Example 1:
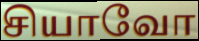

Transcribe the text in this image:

சியாவோ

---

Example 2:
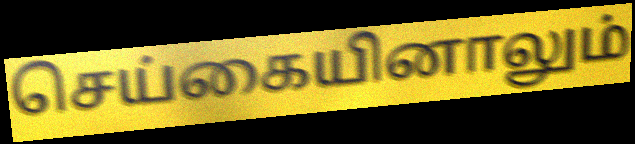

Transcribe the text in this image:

செய்கையினாலும்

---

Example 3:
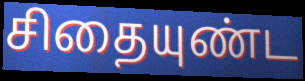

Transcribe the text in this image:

சிதையுண்ட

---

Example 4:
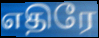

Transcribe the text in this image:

எதிரே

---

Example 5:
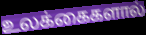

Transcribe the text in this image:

உலக்கைகளால்